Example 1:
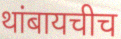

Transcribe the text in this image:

थांबायचीच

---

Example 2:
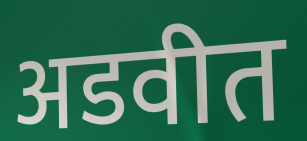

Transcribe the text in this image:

अडवीत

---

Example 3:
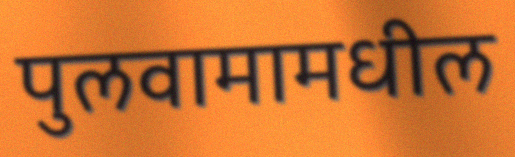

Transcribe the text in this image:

पुलवामामधील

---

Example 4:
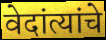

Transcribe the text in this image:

वेदांत्यांचे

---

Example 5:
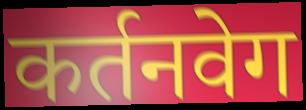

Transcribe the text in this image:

कर्तनवेग